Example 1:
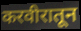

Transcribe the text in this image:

करवीरातून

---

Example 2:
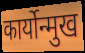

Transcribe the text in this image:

कार्योन्मुख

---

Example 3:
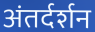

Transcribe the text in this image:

अंतर्दर्शन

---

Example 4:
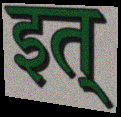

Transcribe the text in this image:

इत्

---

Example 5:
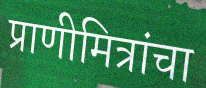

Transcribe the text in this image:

प्राणीमित्रांचा